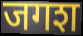
जगश